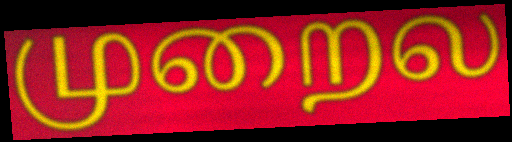
முறைல